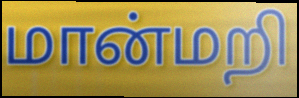
மான்மறி